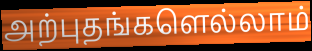
அற்புதங்களெல்லாம்